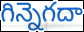
గిన్నెగదా